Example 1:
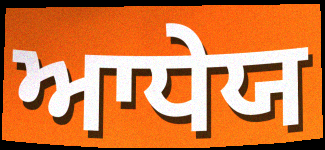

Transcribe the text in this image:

ਆਧੇਯ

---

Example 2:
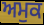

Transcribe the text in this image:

ਅਮੁਕ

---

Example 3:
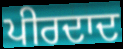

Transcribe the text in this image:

ਪੀਰਦਾਦ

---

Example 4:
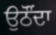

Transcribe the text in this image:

ਉਠੌਂਦਾ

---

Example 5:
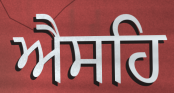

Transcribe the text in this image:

ਐਸਹਿ